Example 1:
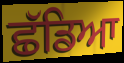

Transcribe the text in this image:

ਛੱਡਿਆ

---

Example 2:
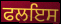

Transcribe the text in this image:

ਫਲਇਸ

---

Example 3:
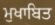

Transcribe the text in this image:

ਮੁਖਾਬਿਤ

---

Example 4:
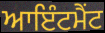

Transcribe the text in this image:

ਆਇੰਟਮੈਂਟ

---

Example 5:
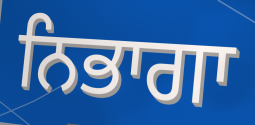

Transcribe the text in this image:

ਨਿਭਾਗਾ